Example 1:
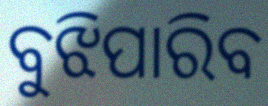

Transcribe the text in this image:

ବୁଝିପାରିବ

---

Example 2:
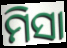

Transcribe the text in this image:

ମିସା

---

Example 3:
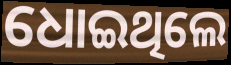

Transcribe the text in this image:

ଧୋଇଥିଲେ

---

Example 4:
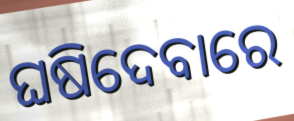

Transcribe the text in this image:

ଘଷିଦେବାରେ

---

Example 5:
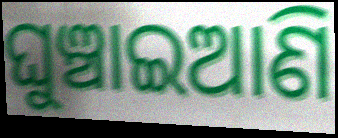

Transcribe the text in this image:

ଘୁଞ୍ଚାଇଆଣି